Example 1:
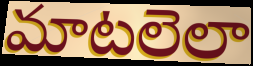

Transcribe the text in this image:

మాటలెలా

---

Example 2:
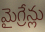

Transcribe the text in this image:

మైగ్రేన్లు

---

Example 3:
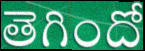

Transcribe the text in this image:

తెగిందో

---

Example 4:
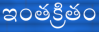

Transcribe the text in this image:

ఇంతక్రితం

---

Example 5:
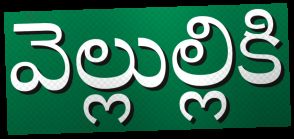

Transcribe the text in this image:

వెల్లుల్లికి